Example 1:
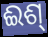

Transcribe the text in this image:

ଈଶ୍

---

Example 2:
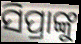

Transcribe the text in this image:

ସିପ୍ରାଙ୍କୁ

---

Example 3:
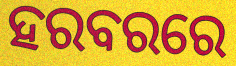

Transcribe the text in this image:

ହରବରରେ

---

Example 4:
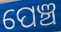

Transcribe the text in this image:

ପେଞ୍ଚ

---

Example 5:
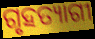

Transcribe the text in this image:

ଗୃହତ୍ୟାଗୀ